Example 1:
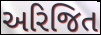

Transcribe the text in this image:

અરિજિત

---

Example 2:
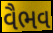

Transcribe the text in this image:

વૈભવ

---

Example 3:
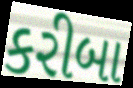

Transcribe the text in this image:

કરીબા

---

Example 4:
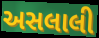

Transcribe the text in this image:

અસલાલી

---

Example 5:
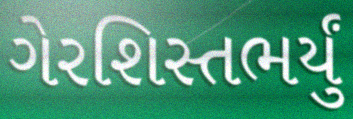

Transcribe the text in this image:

ગેરશિસ્તભર્યું